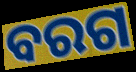
ବରଗ